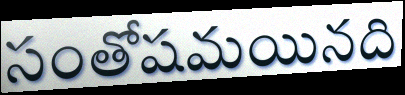
సంతోషమయినది